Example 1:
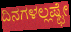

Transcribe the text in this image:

ದಿನಗಳಲ್ಲಷ್ಟೇ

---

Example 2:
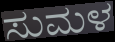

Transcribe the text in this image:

ಸುಮಳ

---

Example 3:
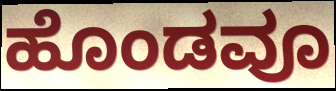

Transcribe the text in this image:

ಹೊಂಡವೂ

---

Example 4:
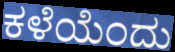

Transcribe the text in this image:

ಕಳೆಯೆಂದು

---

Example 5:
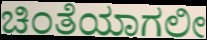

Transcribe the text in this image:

ಚಿಂತೆಯಾಗಲೀ